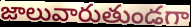
జాలువారుతుండగా